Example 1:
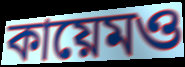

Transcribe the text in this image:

কায়েমও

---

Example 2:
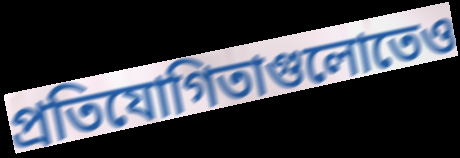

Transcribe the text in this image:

প্রতিযোগিতাগুলোতেও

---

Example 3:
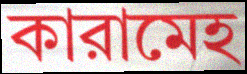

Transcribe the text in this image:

কারামেহ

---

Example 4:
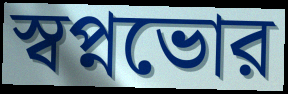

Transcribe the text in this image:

স্বপ্নভোর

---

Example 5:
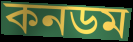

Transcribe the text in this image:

কনডম